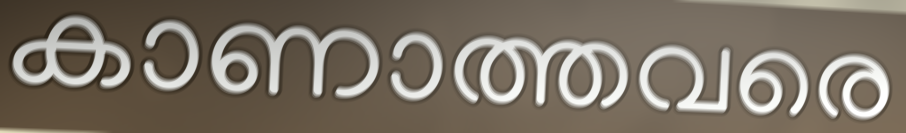
കാണാത്തവരെ